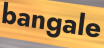
bangale